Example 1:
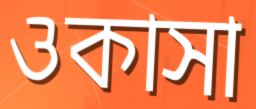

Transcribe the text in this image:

ওকাসা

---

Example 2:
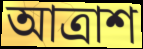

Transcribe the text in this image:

আত্রাশ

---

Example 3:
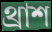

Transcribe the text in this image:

থ্রাশ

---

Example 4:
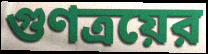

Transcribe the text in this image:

গুণত্রয়ের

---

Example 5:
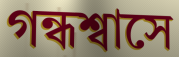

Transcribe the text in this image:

গন্ধশ্বাসে